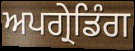
ਅਪਗ੍ਰੇਡਿੰਗ